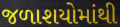
જળાશયોમાંથી